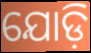
ଯୋଡ଼ି